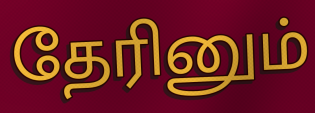
தேரினும்